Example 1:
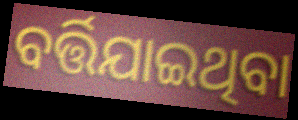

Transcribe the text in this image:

ବର୍ତ୍ତିଯାଇଥିବା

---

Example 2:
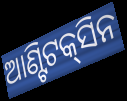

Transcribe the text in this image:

ଆଣ୍ଟିଟକ୍‌ସିନ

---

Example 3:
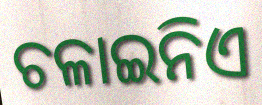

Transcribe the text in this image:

ଚଳାଇନିଏ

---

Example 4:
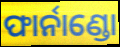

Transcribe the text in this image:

ଫାର୍ନାଣ୍ଡୋ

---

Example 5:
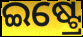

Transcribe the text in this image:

ଇଷ୍ଟ୍ରେ